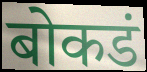
बोकडं